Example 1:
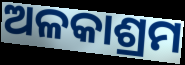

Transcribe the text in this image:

ଅଳକାଶ୍ରମ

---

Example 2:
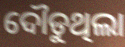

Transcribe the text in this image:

ଦୌଡୁଥିଲା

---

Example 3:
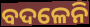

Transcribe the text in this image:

ବଦଳେନି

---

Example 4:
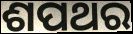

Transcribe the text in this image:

ଶପଥର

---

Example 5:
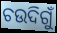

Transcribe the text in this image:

ଚଉଦିଗୁଁ